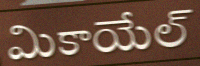
మికాయేల్